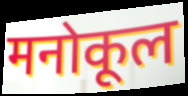
मनोकूल